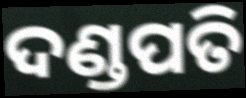
ଦଣ୍ଡପତି